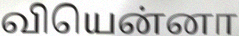
வியென்னா